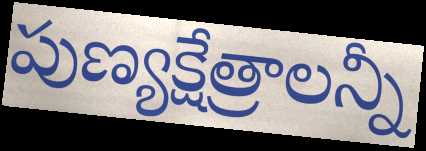
పుణ్యక్షేత్రాలన్నీ